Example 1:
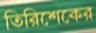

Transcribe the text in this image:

তিরিশেকের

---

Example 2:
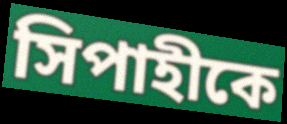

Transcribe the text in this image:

সিপাহীকে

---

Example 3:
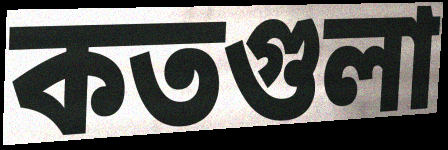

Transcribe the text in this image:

কতগুলা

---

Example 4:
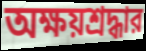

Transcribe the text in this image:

অক্ষয়শ্রদ্ধার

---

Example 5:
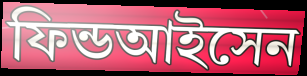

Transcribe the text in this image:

ফিন্ডআইসেন